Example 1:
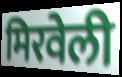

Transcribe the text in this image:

मिरवेली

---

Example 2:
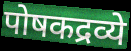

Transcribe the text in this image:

पोषकद्रव्ये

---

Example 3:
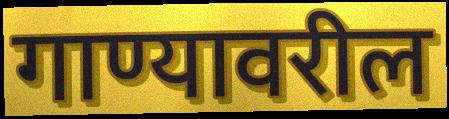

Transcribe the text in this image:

गाण्यावरील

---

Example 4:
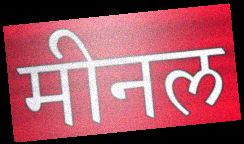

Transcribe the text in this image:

मीनल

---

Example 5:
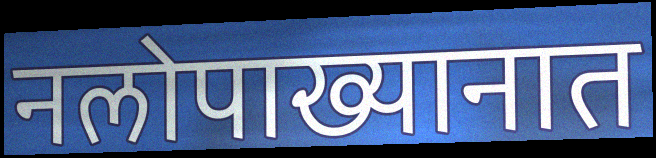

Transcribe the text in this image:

नलोपाख्यानात